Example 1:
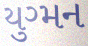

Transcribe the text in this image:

યુગ્મન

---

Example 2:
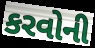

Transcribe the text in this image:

કરવોની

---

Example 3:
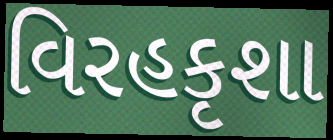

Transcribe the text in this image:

વિરહકૃશા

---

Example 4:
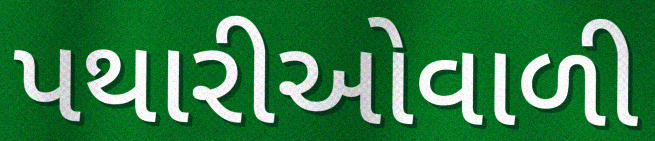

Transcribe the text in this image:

પથારીઓવાળી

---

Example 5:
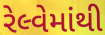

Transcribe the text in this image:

રેલ્વેમાંથી